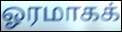
ஓரமாகக்